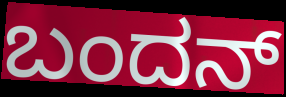
ಬಂದನ್